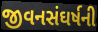
જીવનસંઘર્ષની